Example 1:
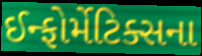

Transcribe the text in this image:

ઈન્ફોર્મેટિક્સના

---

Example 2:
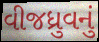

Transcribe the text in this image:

વીજધ્રુવનું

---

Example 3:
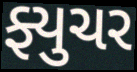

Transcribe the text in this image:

ફ્યુચર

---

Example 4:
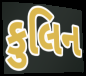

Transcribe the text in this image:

કુલિન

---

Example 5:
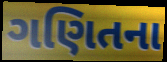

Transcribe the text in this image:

ગણિતના